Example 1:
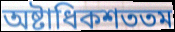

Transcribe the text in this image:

অষ্টাধিকশততম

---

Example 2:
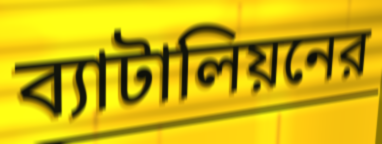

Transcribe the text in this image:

ব্যাটালিয়নের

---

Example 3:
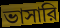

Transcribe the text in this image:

ভাসারি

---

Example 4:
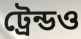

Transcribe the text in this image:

ট্রেন্ডও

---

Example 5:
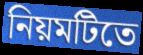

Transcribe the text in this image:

নিয়মটিতে